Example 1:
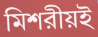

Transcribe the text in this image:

মিশরীয়ই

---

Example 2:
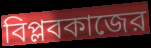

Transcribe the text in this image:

বিপ্লবকাজের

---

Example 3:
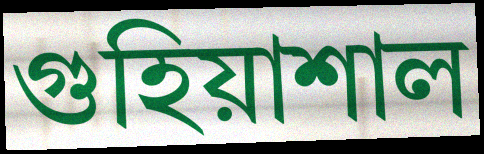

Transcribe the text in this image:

গুহিয়াশাল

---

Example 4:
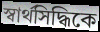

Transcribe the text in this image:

স্বার্থসিদ্ধিকে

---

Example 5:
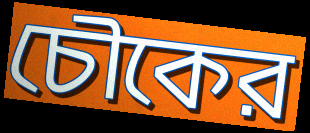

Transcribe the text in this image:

চৌকের